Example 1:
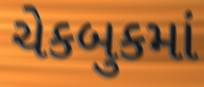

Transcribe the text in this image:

ચેકબુકમાં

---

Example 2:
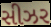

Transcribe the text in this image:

સીઝર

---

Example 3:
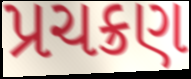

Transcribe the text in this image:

પ્રચક્રણ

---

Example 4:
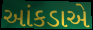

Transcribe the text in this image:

આંકડાએ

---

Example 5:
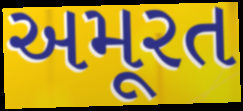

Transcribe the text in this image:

અમૂરત